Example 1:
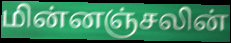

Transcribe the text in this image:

மின்னஞ்சலின்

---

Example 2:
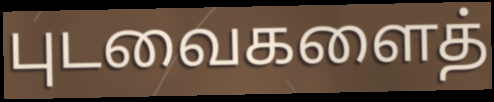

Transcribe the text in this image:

புடவைகளைத்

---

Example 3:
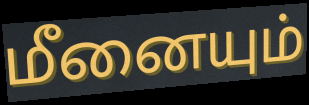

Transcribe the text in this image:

மீனையும்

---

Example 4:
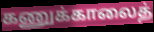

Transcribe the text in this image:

கணுக்காலைத்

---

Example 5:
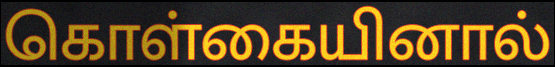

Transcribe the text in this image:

கொள்கையினால்